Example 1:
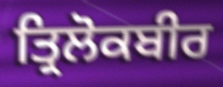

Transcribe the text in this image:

ਤ੍ਰਿਲੋਕਬੀਰ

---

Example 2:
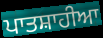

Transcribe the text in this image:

ਪਾਤਸ਼ਾਹੀਆ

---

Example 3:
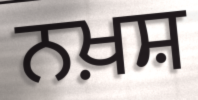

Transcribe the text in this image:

ਨਖ਼ਸ਼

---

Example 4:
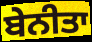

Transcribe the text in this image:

ਬੇਨੀਤਾ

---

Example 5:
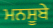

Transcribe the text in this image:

ਮਨਸੂਬੇ